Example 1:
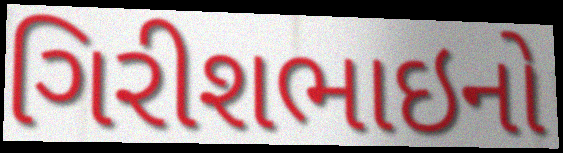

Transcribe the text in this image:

ગિરીશભાઇનો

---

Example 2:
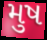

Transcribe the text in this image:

મુષ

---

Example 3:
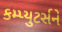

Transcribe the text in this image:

કમ્પ્યુટર્સને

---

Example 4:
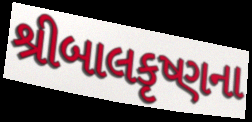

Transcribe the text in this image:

શ્રીબાલકૃષ્ણના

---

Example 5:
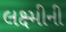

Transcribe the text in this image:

લક્ષ્મીની